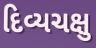
દિવ્યચક્ષુ